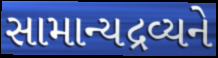
સામાન્યદ્રવ્યને